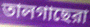
তালগাছেরা